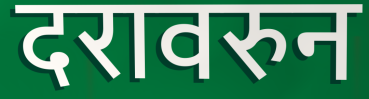
दरावरुन